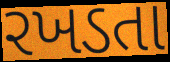
રખડતા